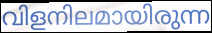
വിളനിലമായിരുന്ന